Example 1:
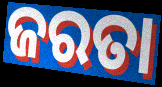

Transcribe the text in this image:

ଜରତା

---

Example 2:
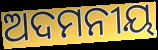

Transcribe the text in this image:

ଅଦମନୀୟ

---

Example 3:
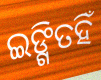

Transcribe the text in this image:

ଇଙ୍ଗିତହିଁ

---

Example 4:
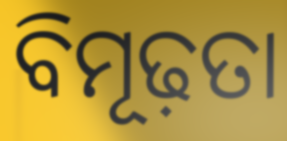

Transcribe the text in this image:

ବିମୂଢ଼ତା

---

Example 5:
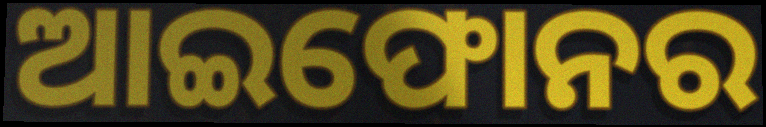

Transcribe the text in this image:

ଆଇଫୋନର